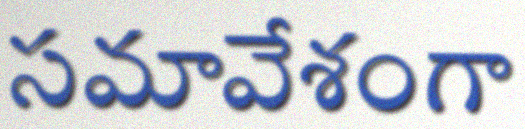
సమావేశంగా